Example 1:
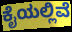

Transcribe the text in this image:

ಕೈಯಲ್ಲಿವೆ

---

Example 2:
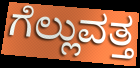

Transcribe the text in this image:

ಗೆಲ್ಲುವತ್ತ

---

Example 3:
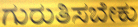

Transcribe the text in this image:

ಗುರುತಿಸಬೇಕು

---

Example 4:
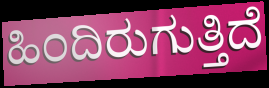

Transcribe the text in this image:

ಹಿಂದಿರುಗುತ್ತಿದೆ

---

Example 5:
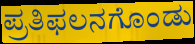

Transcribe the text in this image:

ಪ್ರತಿಫಲನಗೊಂಡು